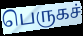
பெருகச்